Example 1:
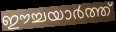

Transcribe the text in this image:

ഈച്ചയാർത്ത്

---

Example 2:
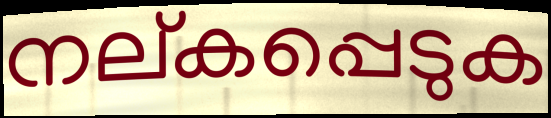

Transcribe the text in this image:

നല്കപ്പെടുക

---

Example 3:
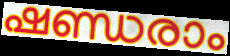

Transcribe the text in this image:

ഷണ്ഡരാം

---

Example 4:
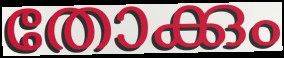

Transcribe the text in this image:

തോക്കും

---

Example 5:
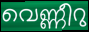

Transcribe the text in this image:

വെണ്ണീറു